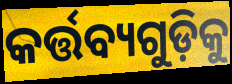
କର୍ତ୍ତବ୍ୟଗୁଡ଼ିକୁ